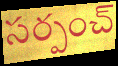
సర్పంచ్